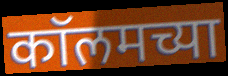
कॉलमच्या